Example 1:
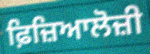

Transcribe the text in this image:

ਫ਼ਿਜ਼ਿਆਲੋਜ਼ੀ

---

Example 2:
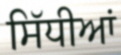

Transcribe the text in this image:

ਸਿੱਧੀਆਂ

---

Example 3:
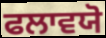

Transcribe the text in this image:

ਫਲਾਵਯੋ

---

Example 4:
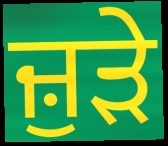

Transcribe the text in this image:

ਜ਼ੁੜੇ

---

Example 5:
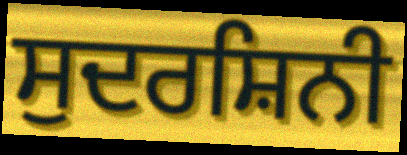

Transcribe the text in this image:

ਸੁਦਰਸ਼ਿਨੀ